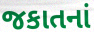
જકાતનાં